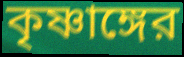
কৃষ্ণাঙ্গের